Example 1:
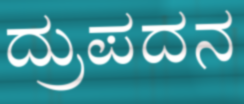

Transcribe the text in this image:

ದ್ರುಪದನ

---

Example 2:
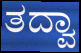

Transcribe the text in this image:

ತದ್ವಾ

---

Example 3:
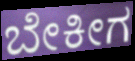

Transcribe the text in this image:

ಬೇಕೀಗ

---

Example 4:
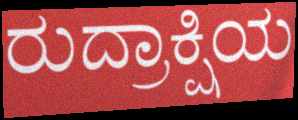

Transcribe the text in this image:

ರುದ್ರಾಕ್ಷಿಯ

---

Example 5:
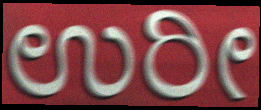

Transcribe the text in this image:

ಉರೀ